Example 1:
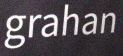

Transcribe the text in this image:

grahan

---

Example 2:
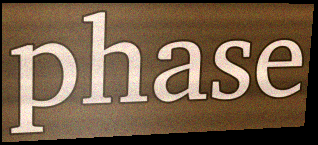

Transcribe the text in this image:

phase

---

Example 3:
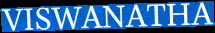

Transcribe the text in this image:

VISWANATHA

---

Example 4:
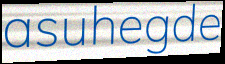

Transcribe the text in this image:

asuhegde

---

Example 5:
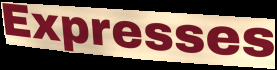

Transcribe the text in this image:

Expresses